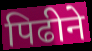
पिढीने